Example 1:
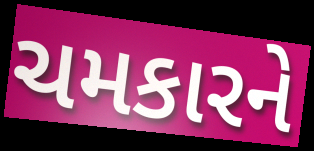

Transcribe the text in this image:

ચમકારને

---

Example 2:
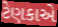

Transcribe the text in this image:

ટેણકાએ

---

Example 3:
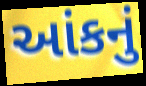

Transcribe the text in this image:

આંકનું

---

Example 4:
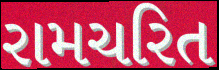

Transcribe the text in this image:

રામચરિત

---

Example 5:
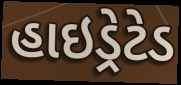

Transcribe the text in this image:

હાઇડ્રેટેડ